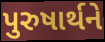
પુરુષાર્થને